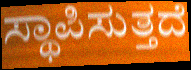
ಸ್ಥಾಪಿಸುತ್ತದೆ